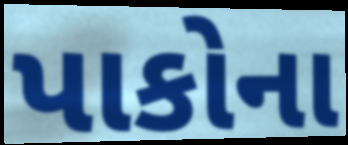
પાકોના